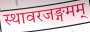
स्थावरजङ्गमम्